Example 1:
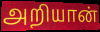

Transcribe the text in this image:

அறியான்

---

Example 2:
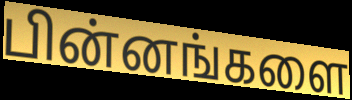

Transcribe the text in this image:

பின்னங்களை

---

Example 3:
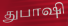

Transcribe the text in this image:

துபாஷி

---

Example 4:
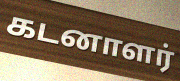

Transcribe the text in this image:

கடனாளர்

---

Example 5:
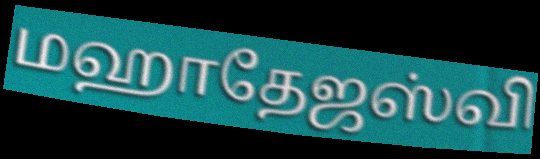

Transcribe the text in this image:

மஹாதேஜஸ்வி